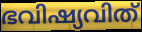
ഭവിഷ്യവിത്